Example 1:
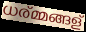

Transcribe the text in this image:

ധര്മ്മങ്ങള്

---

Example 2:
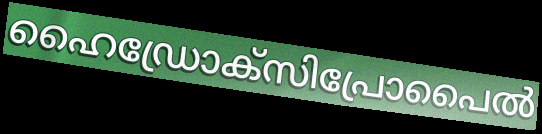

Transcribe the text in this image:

ഹൈഡ്രോക്സിപ്രോപൈൽ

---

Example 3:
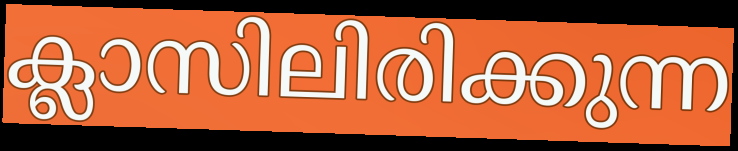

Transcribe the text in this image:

ക്ലാസിലിരിക്കുന്ന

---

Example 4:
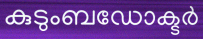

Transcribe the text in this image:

കുടുംബഡോക്ടർ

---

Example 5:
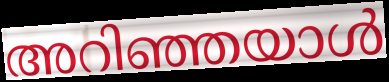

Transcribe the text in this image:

അറിഞ്ഞയാൾ